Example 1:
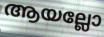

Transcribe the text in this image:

ആയല്ലോ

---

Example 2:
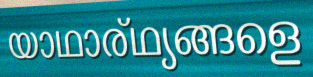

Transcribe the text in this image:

യാഥാര്ഥ്യങ്ങളെ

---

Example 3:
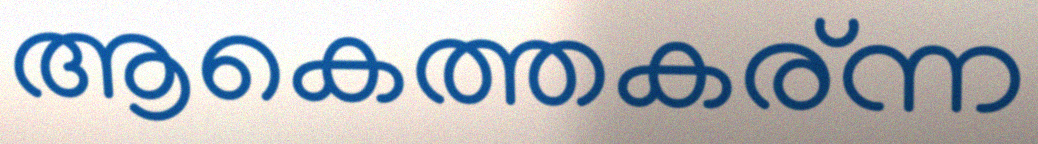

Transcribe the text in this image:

ആകെത്തകര്ന്ന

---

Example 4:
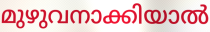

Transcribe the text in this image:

മുഴുവനാക്കിയാൽ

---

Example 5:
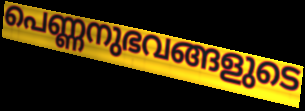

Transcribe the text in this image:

പെണ്ണനുഭവങ്ങളുടെ